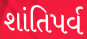
શાંતિપર્વ